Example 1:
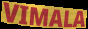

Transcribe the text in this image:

VIMALA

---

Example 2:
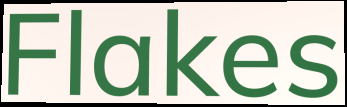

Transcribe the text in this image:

Flakes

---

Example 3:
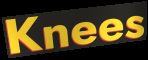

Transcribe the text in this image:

Knees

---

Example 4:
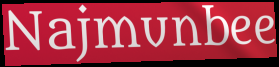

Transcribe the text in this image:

Najmunbee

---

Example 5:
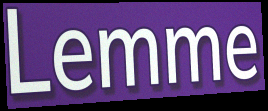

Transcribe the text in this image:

Lemme